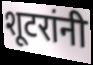
शूटरांनी